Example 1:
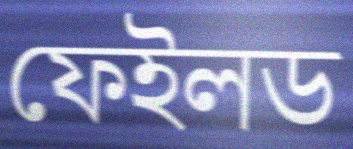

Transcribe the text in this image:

ফেইলড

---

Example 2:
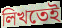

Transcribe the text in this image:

লিখতেই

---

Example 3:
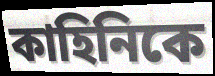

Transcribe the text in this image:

কাহিনিকে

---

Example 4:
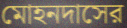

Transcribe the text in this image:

মোহনদাসের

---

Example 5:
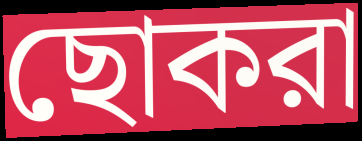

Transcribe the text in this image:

ছোকরা